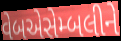
વેબએસેમ્બલીને